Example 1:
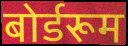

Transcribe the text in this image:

बोर्डरूम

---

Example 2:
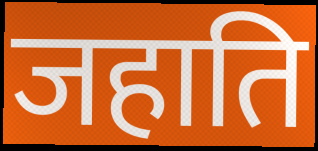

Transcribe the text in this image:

जहाति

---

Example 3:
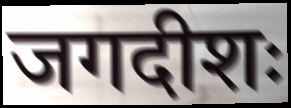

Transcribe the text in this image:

जगदीशः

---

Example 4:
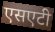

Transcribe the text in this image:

एसएटी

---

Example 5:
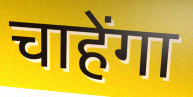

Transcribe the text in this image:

चाहेंगा